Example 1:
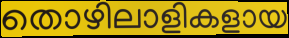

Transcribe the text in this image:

തൊഴിലാളികളായ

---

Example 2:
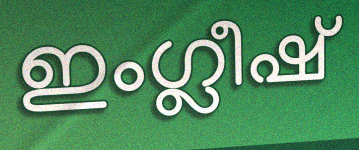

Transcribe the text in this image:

ഇംഗ്ലീഷ്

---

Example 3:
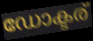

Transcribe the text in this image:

ഡോക്ടര്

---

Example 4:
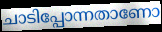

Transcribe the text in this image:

ചാടിപ്പോന്നതാണോ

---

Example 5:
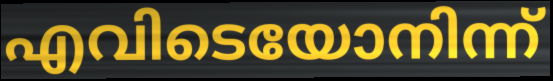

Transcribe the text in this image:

എവിടെയോനിന്ന്